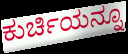
ಕುರ್ಚಿಯನ್ನೂ